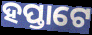
ହପ୍ତାଟେ